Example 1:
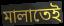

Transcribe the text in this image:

মালাতেই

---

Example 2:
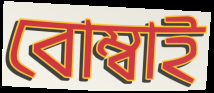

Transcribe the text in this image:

বোম্বাই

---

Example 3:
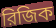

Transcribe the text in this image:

রিজিক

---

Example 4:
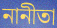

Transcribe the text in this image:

নানীতা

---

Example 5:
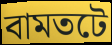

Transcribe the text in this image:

বামতটে